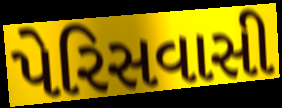
પેરિસવાસી